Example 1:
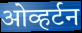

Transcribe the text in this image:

ओव्हर्टन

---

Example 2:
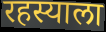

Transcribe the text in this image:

रहस्याला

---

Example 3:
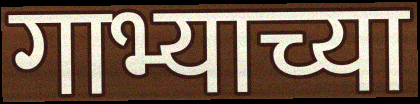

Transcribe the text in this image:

गाभ्याच्या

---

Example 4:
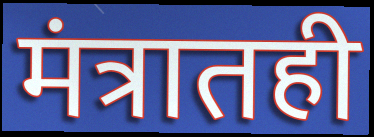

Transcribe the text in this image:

मंत्रातही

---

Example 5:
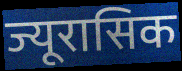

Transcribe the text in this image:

ज्यूरासिक